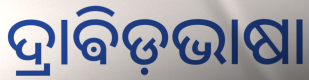
ଦ୍ରାଵିଡ଼ଭାଷା